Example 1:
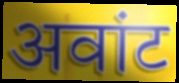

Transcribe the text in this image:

अवांट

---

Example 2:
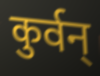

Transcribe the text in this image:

कुर्वन्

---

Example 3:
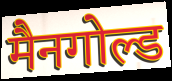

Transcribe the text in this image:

मैनगोल्ड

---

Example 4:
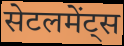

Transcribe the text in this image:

सेटलमेंट्स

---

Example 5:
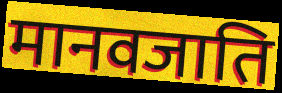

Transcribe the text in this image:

मानवजाति